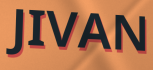
JIVAN